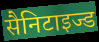
सैनिटाइज्ड